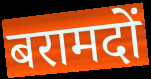
बरामदों